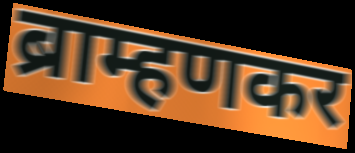
ब्राम्हणकर